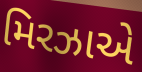
મિરઝાએ